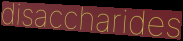
disaccharides